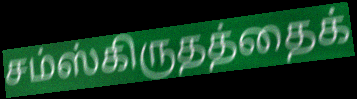
சம்ஸ்கிருதத்தைக்